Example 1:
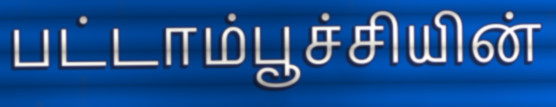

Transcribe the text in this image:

பட்டாம்பூச்சியின்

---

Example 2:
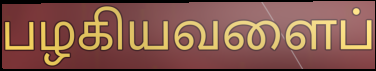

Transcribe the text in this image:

பழகியவளைப்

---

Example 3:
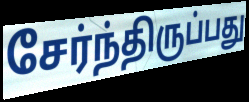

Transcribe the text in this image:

சேர்ந்திருப்பது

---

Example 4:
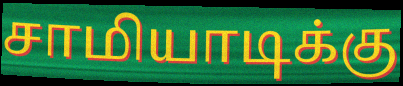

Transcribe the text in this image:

சாமியாடிக்கு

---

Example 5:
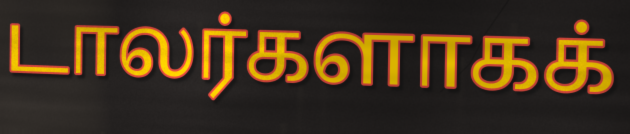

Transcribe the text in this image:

டாலர்களாகக்